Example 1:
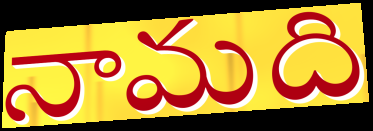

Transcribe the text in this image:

నామది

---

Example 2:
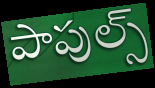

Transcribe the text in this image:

పాపుల్స్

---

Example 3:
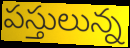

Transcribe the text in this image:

పస్తులున్న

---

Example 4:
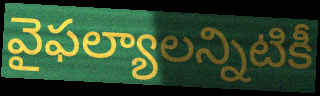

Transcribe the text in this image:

వైఫల్యాలన్నిటికీ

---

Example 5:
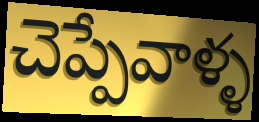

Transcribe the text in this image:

చెప్పేవాళ్ళ